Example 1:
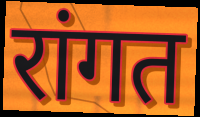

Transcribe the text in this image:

रांगत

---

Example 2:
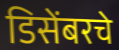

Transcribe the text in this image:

डिसेंबरचे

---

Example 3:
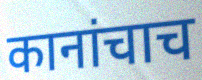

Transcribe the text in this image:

कानांचाच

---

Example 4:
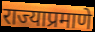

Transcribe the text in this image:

राज्याप्रमाणे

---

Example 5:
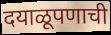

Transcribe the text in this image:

दयाळूपणाची